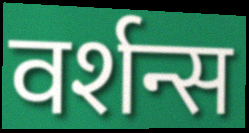
वर्शन्स